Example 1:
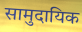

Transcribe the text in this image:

सामुदायिक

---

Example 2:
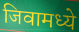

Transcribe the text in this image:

जिवामध्ये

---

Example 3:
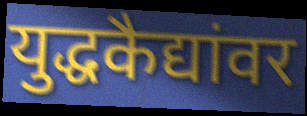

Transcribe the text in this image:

युद्धकैद्यांवर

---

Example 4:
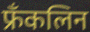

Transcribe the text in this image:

फ्रॅंकलिन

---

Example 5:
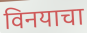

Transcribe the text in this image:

विनयाचा